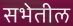
सभेतील